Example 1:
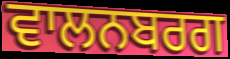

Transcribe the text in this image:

ਵਾਲਨਬਰਗ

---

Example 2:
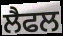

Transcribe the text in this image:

ਲੈਫਲ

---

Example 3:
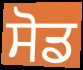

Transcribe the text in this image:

ਸੋਡ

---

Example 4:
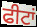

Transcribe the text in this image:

ਫੀਟਾਂ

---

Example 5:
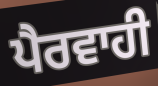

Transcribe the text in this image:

ਪੈਰਵਾਹੀ